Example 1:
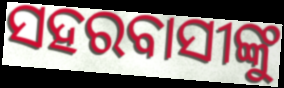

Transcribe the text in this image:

ସହରବାସୀଙ୍କୁ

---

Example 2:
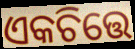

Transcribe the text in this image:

ଏକଚିତ୍ତେ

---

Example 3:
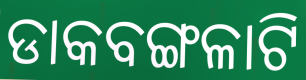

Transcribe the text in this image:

ଡାକବଙ୍ଗଳାଟି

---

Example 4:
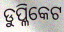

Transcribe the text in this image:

ଡୁପ୍ଳିକେଟ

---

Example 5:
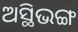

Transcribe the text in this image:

ଅସ୍ଥିଭଙ୍ଗ